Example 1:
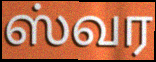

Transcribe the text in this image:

ஸ்வர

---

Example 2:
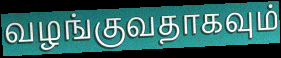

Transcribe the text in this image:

வழங்குவதாகவும்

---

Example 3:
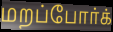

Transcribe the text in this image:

மறப்போர்க்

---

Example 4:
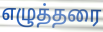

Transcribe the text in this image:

எழுத்தரை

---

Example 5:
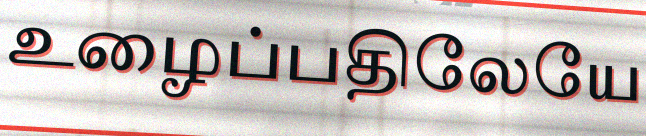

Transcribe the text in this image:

உழைப்பதிலேயே